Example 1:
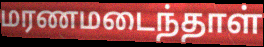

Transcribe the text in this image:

மரணமடைந்தாள்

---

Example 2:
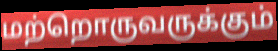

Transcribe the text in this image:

மற்றொருவருக்கும்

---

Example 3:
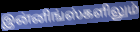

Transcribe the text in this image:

இன்னிங்ஸ்களிலும்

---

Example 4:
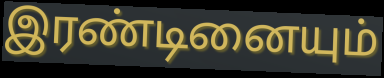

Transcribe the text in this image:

இரண்டினையும்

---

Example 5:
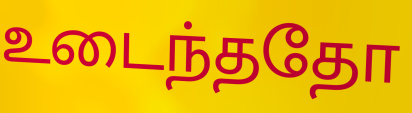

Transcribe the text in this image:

உடைந்ததோ